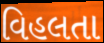
વિહલતા